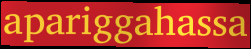
apariggahassa